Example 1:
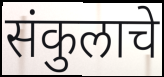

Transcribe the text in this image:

संकुलाचे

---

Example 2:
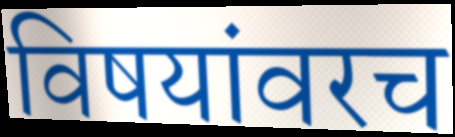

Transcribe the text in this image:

विषयांवरच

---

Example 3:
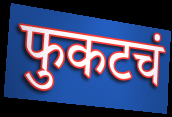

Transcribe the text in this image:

फुकटचं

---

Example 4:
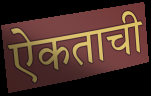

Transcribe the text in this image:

ऐकताची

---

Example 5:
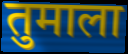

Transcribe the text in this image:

तुमाला